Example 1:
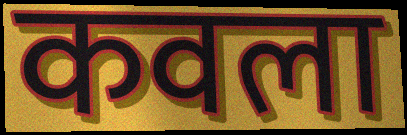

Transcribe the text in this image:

कवला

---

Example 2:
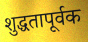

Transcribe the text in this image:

शुद्धतापूर्वक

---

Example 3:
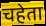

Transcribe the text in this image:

चहेता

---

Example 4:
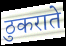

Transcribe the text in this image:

ठुकराते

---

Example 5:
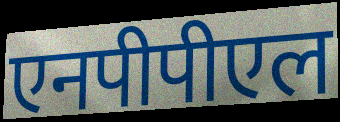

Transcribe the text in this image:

एनपीपीएल